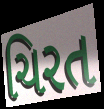
ચિરત